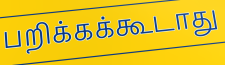
பறிக்கக்கூடாது